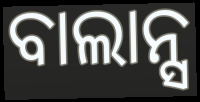
ବାଲାନ୍ସ